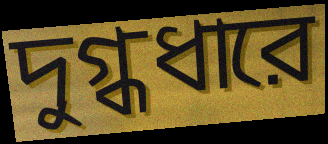
দুগ্ধধারে